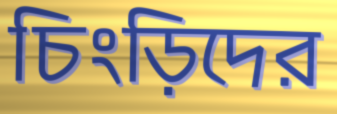
চিংড়িদের